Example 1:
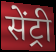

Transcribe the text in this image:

सेंट्री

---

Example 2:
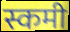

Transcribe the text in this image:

स्कमी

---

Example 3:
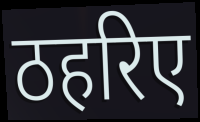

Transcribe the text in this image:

ठहरिए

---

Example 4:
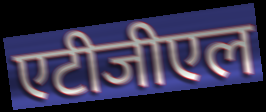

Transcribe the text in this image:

एटीजीएल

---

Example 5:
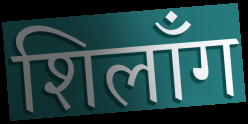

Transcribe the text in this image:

शिलाँग